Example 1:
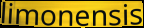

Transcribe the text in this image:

limonensis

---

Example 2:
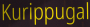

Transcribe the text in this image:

Kurippugal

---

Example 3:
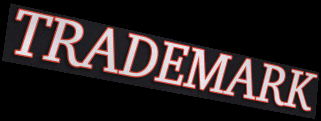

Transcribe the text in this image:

TRADEMARK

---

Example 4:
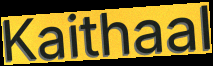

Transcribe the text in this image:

Kaithaal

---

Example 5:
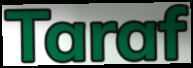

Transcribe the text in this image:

Taraf